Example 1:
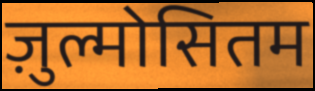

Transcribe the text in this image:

ज़ुल्मोसितम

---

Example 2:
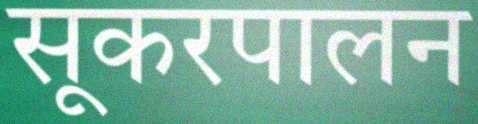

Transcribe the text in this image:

सूकरपालन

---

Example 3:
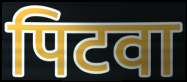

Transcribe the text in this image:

पिटवा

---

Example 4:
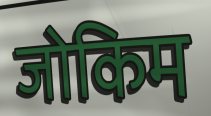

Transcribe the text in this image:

जोकिम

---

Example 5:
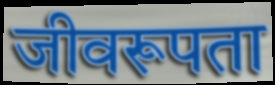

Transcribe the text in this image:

जीवरूपता